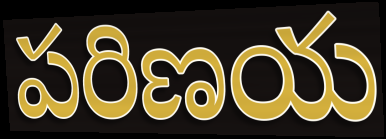
పరిణయ